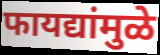
फायद्यांमुळे